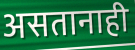
असतानाही